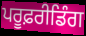
ਪਰੂਫ਼ਰੀਡਿੰਗ